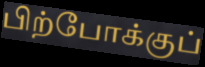
பிற்போக்குப்